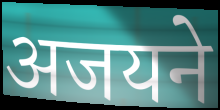
अजयने